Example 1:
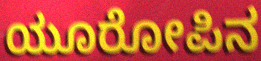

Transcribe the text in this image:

ಯೂರೋಪಿನ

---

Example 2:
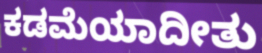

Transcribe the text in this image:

ಕಡಮೆಯಾದೀತು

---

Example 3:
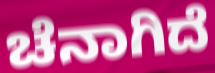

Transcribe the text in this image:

ಚೆನಾಗಿದೆ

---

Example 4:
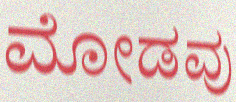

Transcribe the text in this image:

ಮೋಡವು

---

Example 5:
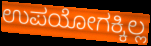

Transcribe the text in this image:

ಉಪಯೋಗಕ್ಕಿಲ್ಲ